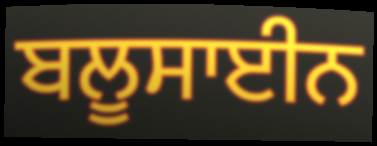
ਬਲੂਸਾਈਨ